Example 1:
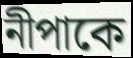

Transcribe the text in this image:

নীপাকে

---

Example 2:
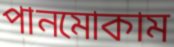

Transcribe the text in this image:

পানমোকাম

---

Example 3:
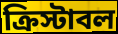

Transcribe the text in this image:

ক্রিস্টাবল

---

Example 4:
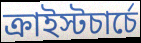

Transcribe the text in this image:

ক্রাইস্টচার্চে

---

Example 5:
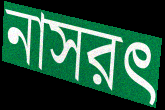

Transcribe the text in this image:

নাসরৎ